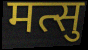
मत्सु